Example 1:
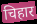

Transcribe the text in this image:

चिहार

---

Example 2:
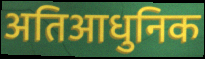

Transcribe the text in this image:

अतिआधुनिक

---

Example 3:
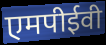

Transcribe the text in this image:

एमपीईवी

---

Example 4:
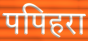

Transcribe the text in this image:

पपिहरा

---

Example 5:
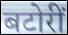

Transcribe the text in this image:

बटोरीं